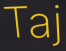
Taj